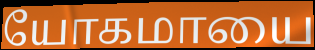
யோகமாயை